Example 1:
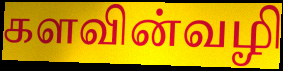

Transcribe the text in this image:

களவின்வழி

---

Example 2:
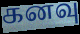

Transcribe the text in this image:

கனவு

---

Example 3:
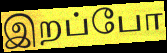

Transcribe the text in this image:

இறப்போ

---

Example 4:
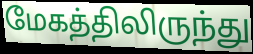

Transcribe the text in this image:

மேகத்திலிருந்து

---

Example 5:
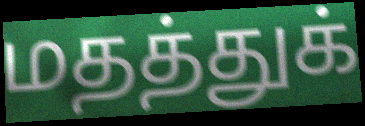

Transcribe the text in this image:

மதத்துக்